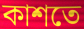
কাশতে